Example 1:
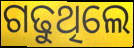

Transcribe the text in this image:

ଗଢୁଥିଲେ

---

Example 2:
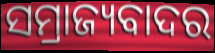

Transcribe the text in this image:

ସମ୍ରାଜ୍ୟବାଦର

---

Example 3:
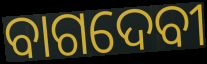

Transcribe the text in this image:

ବାଗଦେବୀ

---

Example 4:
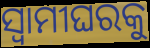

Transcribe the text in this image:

ସ୍ୱାମୀଘରକୁ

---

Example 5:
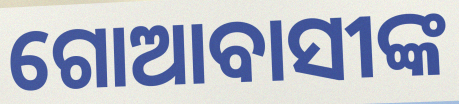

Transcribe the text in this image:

ଗୋଆବାସୀଙ୍କ